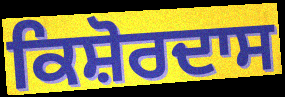
ਕਿਸ਼ੋਰਦਾਸ